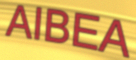
AIBEA